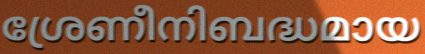
ശ്രേണീനിബദ്ധമായ